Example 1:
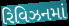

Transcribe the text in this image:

રિવિઝનમાં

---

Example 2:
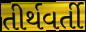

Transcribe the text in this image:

તીર્થવર્તી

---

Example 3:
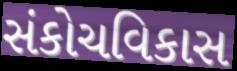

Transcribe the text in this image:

સંકોચવિકાસ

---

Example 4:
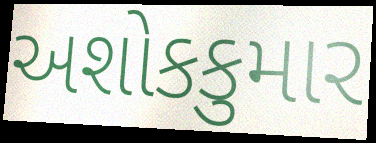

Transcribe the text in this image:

અશોકકુમાર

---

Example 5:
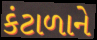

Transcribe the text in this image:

કંટાળાને